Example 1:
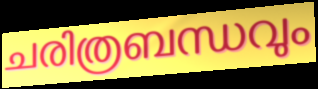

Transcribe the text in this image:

ചരിത്രബന്ധവും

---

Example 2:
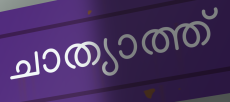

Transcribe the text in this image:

ചാത്യാത്ത്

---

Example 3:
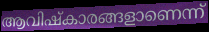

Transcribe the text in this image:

ആവിഷ്കാരങ്ങളാണെന്ന്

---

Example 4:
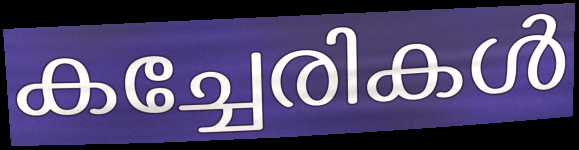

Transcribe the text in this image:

കച്ചേരികൾ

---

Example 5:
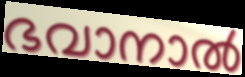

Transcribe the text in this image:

ഭവാനാൽ